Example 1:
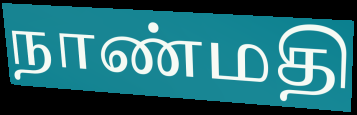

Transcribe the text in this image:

நாண்மதி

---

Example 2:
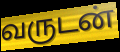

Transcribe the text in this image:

வருடன்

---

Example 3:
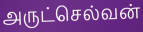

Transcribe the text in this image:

அருட்செல்வன்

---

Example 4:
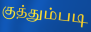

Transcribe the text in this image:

குத்தும்படி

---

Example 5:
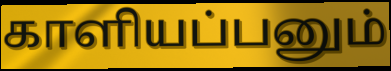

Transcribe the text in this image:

காளியப்பனும்